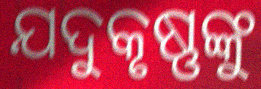
ଯଦୁକୃଷ୍ଣଙ୍କୁ